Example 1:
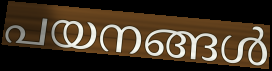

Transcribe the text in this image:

പയനങ്ങൾ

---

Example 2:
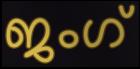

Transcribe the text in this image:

ജംഗ്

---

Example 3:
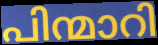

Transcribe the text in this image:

പിന്മാറി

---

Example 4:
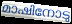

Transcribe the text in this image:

മാഷിനോടു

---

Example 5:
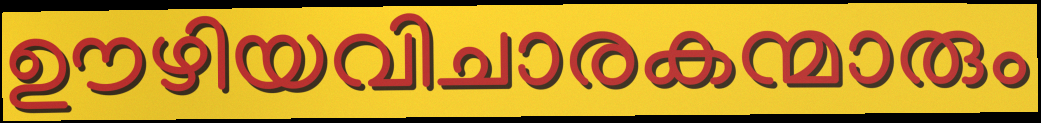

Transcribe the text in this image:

ഊഴിയവിചാരകന്മാരും